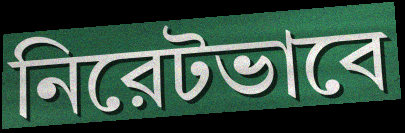
নিরেটভাবে